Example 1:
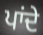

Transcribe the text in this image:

ਪਾਂਦੇ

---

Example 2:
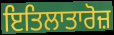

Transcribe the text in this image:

ਇਤਿਲਾਤਾਰੋਜ਼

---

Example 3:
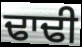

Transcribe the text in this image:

ਢਾਢੀ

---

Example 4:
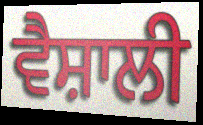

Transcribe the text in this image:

ਵੈਸ਼ਾਲੀ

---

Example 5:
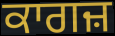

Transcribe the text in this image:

ਕਾਗਜ਼